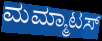
ಮಮ್ಮಾಟಸ್